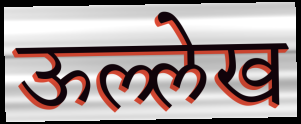
ऊल्लेख